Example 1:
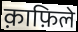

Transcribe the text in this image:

क़ाफ़िले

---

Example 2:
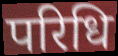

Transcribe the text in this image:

परिधि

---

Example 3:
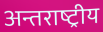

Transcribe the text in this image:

अन्तराष्ट्रीय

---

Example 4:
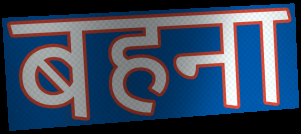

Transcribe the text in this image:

बहना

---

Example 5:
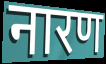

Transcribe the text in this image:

नारण